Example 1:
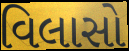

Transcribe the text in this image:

વિલાસો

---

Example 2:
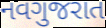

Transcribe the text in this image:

નવગુજરાત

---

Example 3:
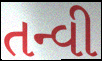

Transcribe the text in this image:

તન્વી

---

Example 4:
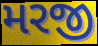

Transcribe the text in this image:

મરજી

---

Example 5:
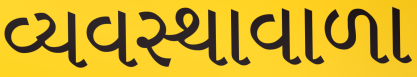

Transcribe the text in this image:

વ્યવસ્થાવાળા